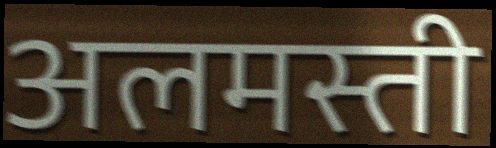
अलमस्ती